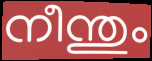
നീന്തും